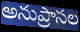
అనుప్రాసల